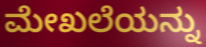
ಮೇಖಲೆಯನ್ನು